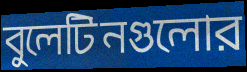
বুলেটিনগুলোর